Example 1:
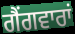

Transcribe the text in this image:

ਗੈਂਗਵਾਰਾਂ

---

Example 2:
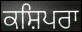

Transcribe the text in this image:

ਕਸ਼ਿਪਰਾ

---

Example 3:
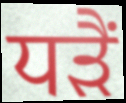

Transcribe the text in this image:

ਧੜੈਂ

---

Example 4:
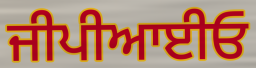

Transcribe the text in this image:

ਜੀਪੀਆਈਓ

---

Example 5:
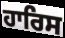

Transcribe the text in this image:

ਹਾਰਿਸ